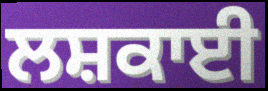
ਲਸ਼ਕਾਈ